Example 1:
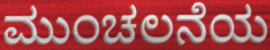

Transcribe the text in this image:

ಮುಂಚಲನೆಯ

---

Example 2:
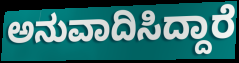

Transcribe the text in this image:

ಅನುವಾದಿಸಿದ್ದಾರೆ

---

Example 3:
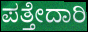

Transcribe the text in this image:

ಪತ್ತೇದಾರಿ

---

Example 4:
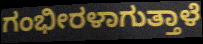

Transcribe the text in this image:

ಗಂಭೀರಳಾಗುತ್ತಾಳೆ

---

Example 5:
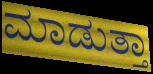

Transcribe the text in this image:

ಮಾಡುತ್ತಾ